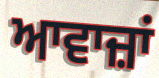
ਆਵਾਜ਼ਾਂ